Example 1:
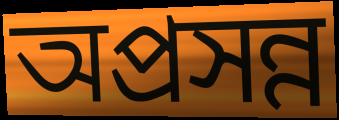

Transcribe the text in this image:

অপ্রসন্ন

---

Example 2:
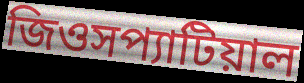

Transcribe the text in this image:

জিওসপ্যাটিয়াল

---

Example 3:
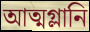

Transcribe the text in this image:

আত্মগ্লানি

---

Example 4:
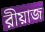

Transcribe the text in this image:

রীয়াজ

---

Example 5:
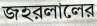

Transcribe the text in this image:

জহরলালের